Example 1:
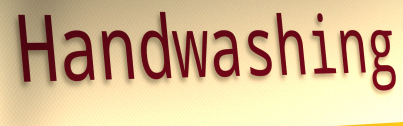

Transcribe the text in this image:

Handwashing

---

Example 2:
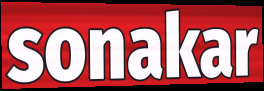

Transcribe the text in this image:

sonakar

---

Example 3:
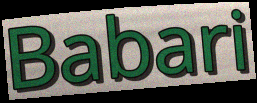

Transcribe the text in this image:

Babari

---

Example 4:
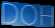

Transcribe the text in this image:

DOH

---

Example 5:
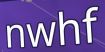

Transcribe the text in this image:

nwhf